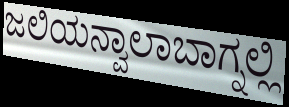
ಜಲಿಯನ್ವಾಲಾಬಾಗ್ನಲ್ಲಿ